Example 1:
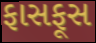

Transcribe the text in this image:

ફાસફૂસ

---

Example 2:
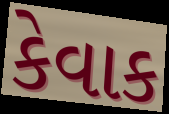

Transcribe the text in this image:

કેવાક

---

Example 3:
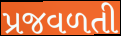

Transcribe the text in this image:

પ્રજવળતી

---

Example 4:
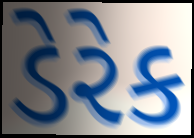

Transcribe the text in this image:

ડેરેક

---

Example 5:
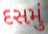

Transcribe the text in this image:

દસમું